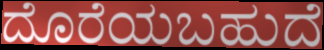
ದೊರೆಯಬಹುದೆ